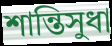
শান্তিসুধা